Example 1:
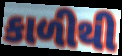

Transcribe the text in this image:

કાળીથી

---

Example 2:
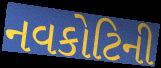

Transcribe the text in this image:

નવકોટિની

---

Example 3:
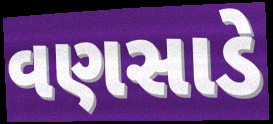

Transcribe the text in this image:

વણસાડે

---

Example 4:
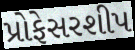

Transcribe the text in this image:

પ્રોફેસરશીપ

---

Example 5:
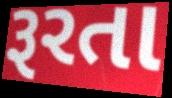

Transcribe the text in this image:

રૂરતા